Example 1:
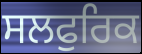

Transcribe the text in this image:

ਸਲਫੁਰਿਕ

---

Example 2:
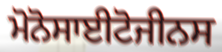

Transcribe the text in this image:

ਮੋਨੋਸਾਈਟੋਜੀਨਸ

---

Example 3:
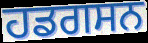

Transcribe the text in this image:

ਹਡਗਸਨ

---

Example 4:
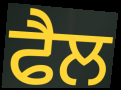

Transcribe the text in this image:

ਫੈਲ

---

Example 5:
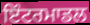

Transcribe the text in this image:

ਇੰਟਰਮਾਡਲ